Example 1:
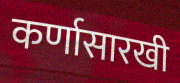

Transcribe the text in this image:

कर्णासारखी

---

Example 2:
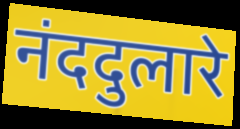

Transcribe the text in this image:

नंददुलारे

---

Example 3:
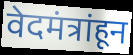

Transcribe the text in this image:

वेदमंत्रांहून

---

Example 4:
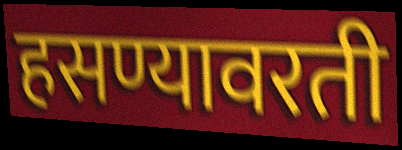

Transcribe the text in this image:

हसण्यावरती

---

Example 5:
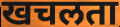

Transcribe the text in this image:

खचलता